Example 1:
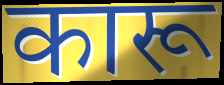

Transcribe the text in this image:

कारू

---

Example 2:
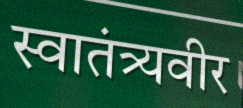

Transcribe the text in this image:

स्वातंत्र्यवीर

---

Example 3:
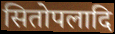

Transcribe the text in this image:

सितोपलादि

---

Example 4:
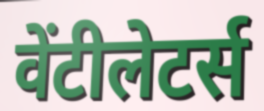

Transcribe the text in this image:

वेंटीलेटर्स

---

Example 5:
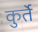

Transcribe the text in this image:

कुर्ते